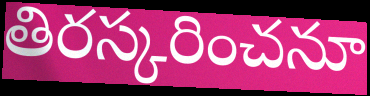
తిరస్కరించనూ